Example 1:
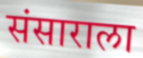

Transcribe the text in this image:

संसाराला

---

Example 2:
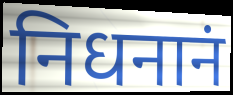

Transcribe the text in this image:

निधनानं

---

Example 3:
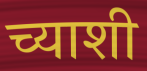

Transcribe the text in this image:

च्याशी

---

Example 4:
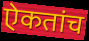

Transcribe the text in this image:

ऐकतांच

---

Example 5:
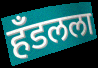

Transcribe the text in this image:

हँडलला